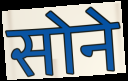
सोने